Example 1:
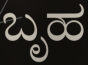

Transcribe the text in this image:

ಬೃಹ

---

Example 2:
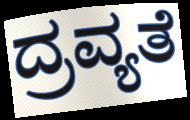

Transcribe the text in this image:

ದ್ರವ್ಯತೆ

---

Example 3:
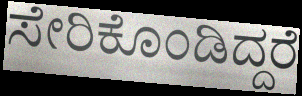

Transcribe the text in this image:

ಸೇರಿಕೊಂಡಿದ್ದರೆ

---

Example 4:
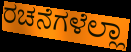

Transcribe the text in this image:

ರಚನೆಗಳೆಲ್ಲಾ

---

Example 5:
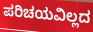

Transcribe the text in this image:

ಪರಿಚಯವಿಲ್ಲದ